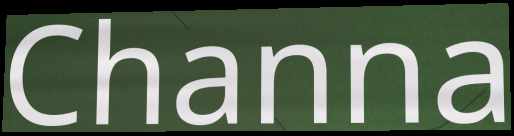
Channa